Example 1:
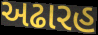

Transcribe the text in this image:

અઢારહ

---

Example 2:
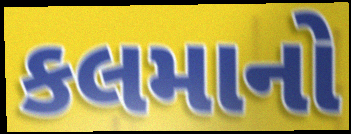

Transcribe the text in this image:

કલમાનો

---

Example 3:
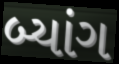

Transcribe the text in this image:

બ્યાંગ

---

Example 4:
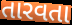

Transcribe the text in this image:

તારવતા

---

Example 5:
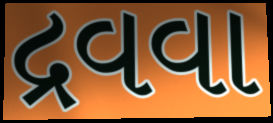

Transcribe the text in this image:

દ્રવવા